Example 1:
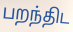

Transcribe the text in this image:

பறந்திட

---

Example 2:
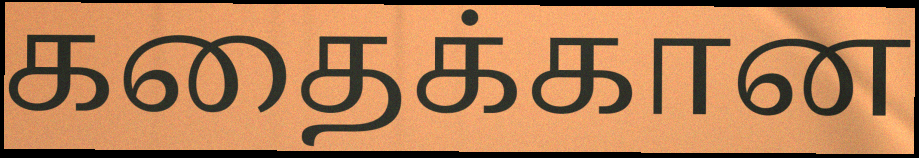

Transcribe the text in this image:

கதைக்கான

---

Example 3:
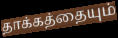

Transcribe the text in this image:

தாக்கத்தையும்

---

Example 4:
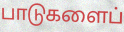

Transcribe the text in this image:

பாடுகளைப்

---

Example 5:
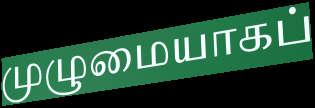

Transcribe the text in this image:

முழுமையாகப்